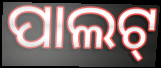
ପାଲଟ୍